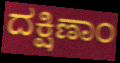
ದಕ್ಷಿಣಾಂ